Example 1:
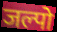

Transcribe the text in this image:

जल्पो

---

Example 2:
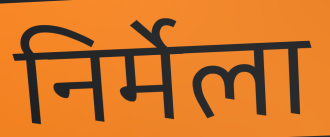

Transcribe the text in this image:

निर्मेला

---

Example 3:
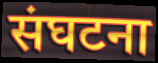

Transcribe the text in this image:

संघटना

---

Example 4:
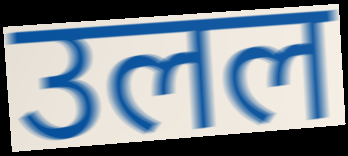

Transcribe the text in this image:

उलल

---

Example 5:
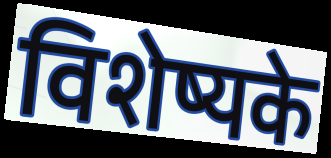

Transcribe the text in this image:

विशेष्यके